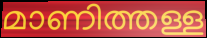
മാണിത്തള്ള